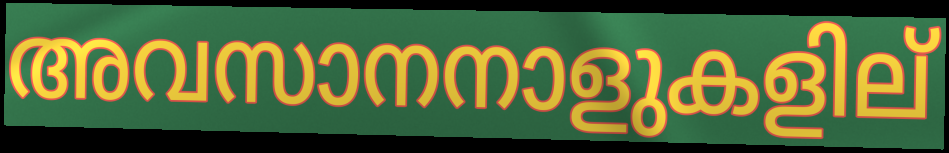
അവസാനനാളുകളില്